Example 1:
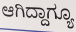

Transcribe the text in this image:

ಆಗಿದ್ದಾಗ್ಯೂ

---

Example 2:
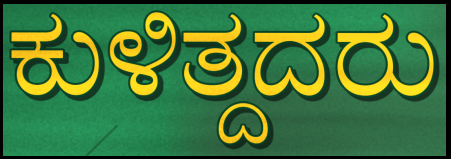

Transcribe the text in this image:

ಕುಳಿತ್ದದರು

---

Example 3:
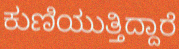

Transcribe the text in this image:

ಕುಣಿಯುತ್ತಿದ್ದಾರೆ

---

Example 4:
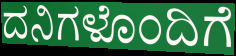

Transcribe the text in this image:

ದನಿಗಳೊಂದಿಗೆ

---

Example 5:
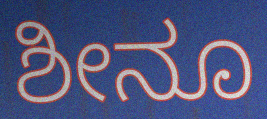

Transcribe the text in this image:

ಶೀನೂ